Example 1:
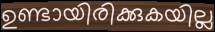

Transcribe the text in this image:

ഉണ്ടായിരിക്കുകയില്ല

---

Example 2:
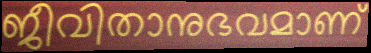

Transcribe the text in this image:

ജീവിതാനുഭവമാണ്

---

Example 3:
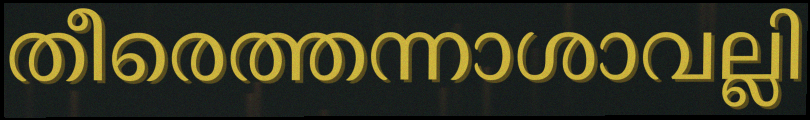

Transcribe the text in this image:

തീരെത്തന്നാശാവല്ലി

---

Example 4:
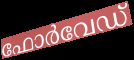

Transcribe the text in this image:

ഫോർവേഡ്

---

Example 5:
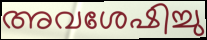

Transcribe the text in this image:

അവശേഷിച്ചു